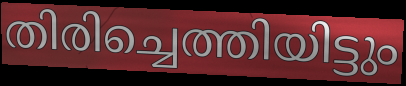
തിരിച്ചെത്തിയിട്ടും